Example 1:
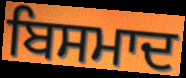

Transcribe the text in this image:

ਬਿਸਮਾਦ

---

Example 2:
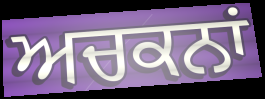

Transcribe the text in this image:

ਅਚਕਨਾਂ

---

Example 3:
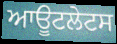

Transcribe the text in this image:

ਆਊਟਲੇਟਸ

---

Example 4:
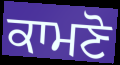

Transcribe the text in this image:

ਕਾਮਣੋ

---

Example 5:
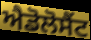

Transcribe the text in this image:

ਐਡੋਲੋਸੈਂਟ